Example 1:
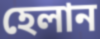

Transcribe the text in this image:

হেলান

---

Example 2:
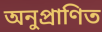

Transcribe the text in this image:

অনুপ্ৰাণিত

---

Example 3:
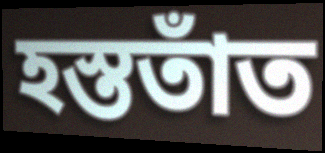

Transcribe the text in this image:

হস্ততাঁত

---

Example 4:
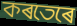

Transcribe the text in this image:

কৰতেৰে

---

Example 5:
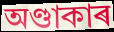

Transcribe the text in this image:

অণ্ডাকাৰ